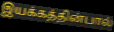
இயக்கத்தின்பால்